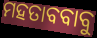
ମହତାବବାବୁ